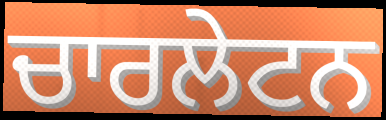
ਚਾਰਲੇਟਨ